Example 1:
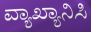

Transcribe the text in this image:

ವ್ಯಾಖ್ಯಾನಿಸಿ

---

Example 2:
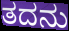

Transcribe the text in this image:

ತದನು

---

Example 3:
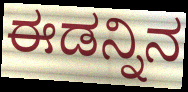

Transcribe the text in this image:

ಈಡನ್ನಿನ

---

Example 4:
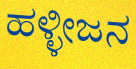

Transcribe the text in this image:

ಹಳ್ಳೀಜನ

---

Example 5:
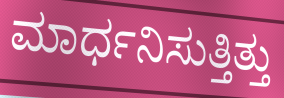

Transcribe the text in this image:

ಮಾರ್ಧನಿಸುತ್ತಿತ್ತು